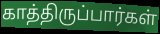
காத்திருப்பார்கள்